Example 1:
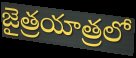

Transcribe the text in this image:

జైత్రయాత్రలో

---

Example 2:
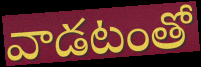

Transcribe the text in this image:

వాడటంతో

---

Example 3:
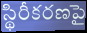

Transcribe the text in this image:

స్థిరీకరణపై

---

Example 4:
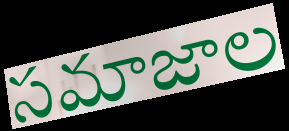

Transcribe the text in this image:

సమాజాల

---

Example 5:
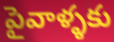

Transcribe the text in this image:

పైవాళ్ళకు